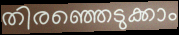
തിരഞ്ഞെടുക്കാം